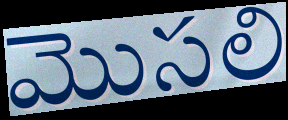
మొసలి